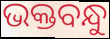
ଭକ୍ତବନ୍ଧୁ